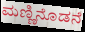
ಮಣ್ಣಿನೊಡನೆ